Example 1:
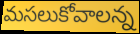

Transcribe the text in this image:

మసలుకోవాలన్న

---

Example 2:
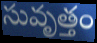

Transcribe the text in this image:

సువృత్తం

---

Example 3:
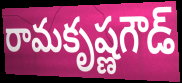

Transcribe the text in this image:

రామకృష్ణగౌడ్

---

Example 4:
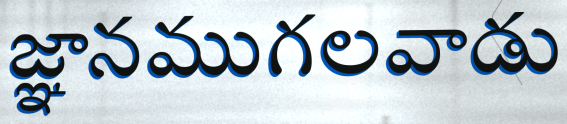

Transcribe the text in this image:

జ్ఞానముగలవాడు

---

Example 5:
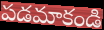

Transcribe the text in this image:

పడమాకండి